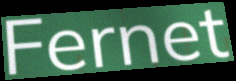
Fernet